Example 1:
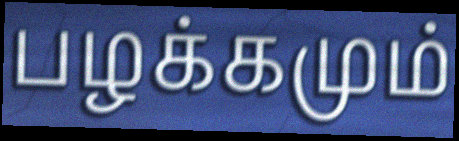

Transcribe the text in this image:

பழக்கமும்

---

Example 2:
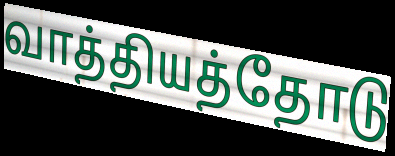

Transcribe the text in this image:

வாத்தியத்தோடு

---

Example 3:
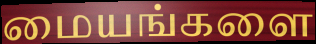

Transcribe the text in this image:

மையங்களை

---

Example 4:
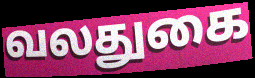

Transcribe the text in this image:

வலதுகை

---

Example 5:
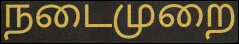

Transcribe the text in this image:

நடைமுறை